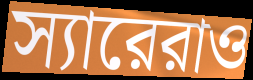
স্যারেরাও